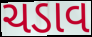
ચડાવ